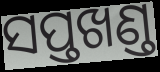
ସପ୍ତଖଣ୍ଡ